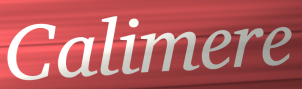
Calimere